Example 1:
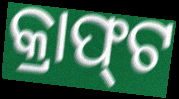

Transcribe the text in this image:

କ୍ରାଫ୍‌ଟ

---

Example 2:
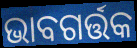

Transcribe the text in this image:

ଭାବଗର୍ତ୍ତକ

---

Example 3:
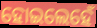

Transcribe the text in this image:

ହୋଇଲେହେଁ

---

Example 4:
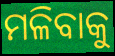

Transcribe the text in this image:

ମଳିବାକୁ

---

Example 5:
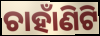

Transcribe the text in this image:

ଚାହାଁଣିଟି